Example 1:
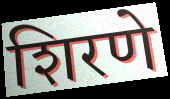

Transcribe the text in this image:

शिरणे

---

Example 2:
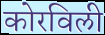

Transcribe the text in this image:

कोरविली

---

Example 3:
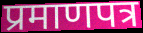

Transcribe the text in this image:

प्रमाणपत्र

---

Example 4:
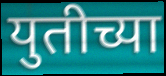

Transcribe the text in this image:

युतीच्या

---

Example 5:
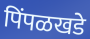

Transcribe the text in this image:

पिंपळखडे